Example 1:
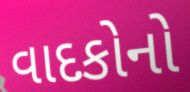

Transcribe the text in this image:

વાદકોનો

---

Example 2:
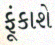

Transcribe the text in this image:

ફૂંકાશે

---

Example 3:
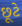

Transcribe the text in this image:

છૂટે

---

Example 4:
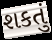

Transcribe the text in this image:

શકતું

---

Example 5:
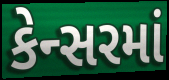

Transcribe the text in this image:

કેન્સરમાં